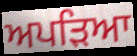
ਅਪੜਿਆ